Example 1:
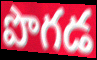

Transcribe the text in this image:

పొగడ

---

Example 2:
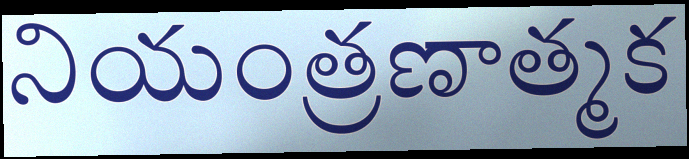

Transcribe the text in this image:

నియంత్రణాత్మక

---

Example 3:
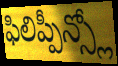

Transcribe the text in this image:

ఫిలిప్పీన్స్లో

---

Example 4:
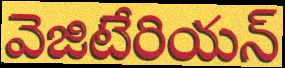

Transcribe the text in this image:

వెజిటేరియన్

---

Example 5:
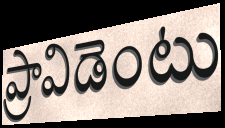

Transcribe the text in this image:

ప్రావిడెంటు